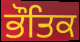
ਭੌਤਿਕ